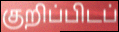
குறிப்பிடப்